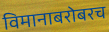
विमानाबरोबरच